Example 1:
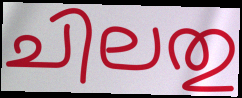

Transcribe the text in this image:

ചിലതു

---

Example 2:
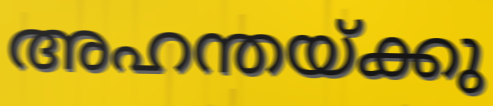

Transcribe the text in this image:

അഹന്തയ്ക്കു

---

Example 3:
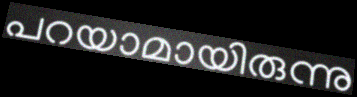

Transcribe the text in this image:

പറയാമായിരുന്നു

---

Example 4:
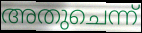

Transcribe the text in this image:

അതുചെന്ന്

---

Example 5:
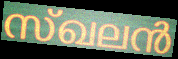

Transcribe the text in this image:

സ്ഖലൻ